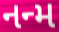
નન્મ